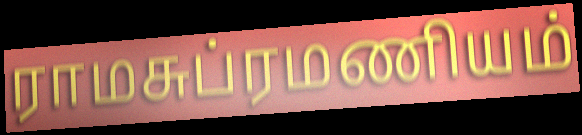
ராமசுப்ரமணியம்